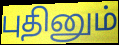
புதினும்